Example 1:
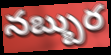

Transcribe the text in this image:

నబ్బుర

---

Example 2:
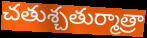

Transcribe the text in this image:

చతుశ్చతుర్మాత్రా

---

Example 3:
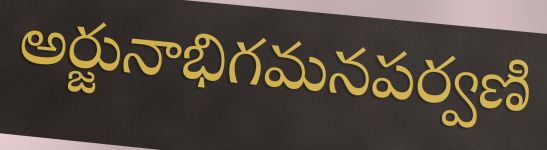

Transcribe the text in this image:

అర్జునాభిగమనపర్వణి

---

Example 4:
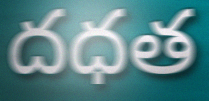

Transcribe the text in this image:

దధత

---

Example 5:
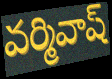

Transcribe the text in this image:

వర్మివాష్